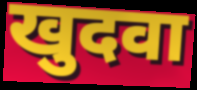
खुदवा